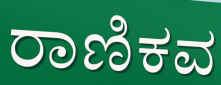
ರಾಣಿಕವ